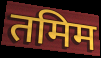
तमिम